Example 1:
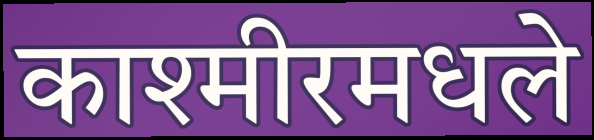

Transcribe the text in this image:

काश्‍मीरमधले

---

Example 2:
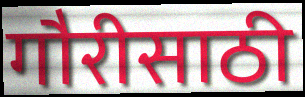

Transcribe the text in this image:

गौरीसाठी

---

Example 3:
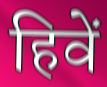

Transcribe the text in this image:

हिवें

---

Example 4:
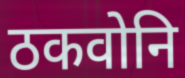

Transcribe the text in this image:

ठकवोनि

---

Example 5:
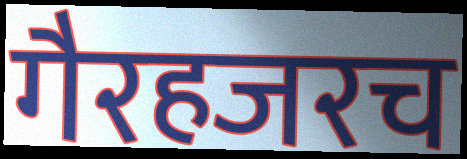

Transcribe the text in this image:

गैरहजरच